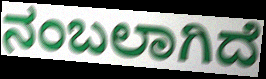
ನಂಬಲಾಗಿದೆ